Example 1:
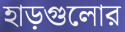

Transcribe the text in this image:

হাড়গুলোর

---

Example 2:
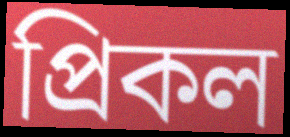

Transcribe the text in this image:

প্রিকল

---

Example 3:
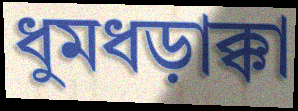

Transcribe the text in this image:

ধুমধড়াক্কা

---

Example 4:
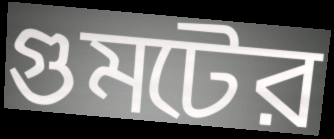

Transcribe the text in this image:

গুমটের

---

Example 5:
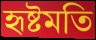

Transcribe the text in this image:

হৃষ্টমতি